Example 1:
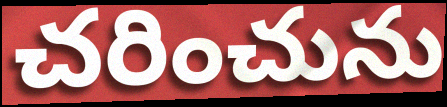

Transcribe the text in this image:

చరించును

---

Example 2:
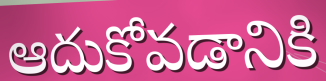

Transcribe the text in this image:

ఆదుకోవడానికి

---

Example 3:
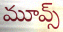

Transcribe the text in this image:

మూవ్స్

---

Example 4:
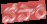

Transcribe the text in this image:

వోసారి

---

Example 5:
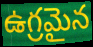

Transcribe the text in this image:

ఉగ్రమైన